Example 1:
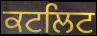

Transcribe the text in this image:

ਕਟਲਿਟ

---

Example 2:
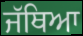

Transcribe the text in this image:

ਜੱਥਿਆ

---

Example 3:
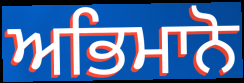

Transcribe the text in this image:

ਅਭਿਮਾਨੋ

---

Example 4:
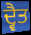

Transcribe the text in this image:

ਦ੍ਵੈਤ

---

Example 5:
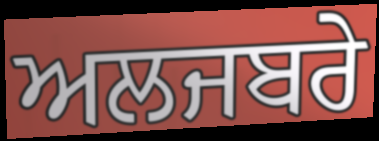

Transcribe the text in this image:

ਅਲਜਬਰੇ